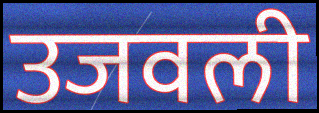
उजवली